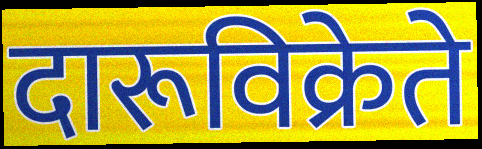
दारूविक्रेते